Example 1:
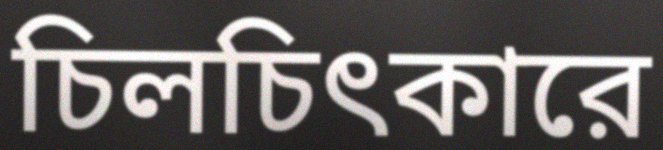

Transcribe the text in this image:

চিলচিৎকারে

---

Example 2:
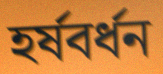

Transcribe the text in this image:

হর্ষবর্ধন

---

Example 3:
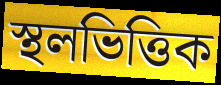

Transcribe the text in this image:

স্থলভিত্তিক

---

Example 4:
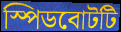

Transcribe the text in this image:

স্পিডবোটটি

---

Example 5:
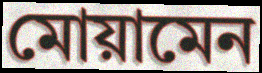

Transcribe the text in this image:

মোয়ামেন